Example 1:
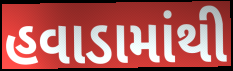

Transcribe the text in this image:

હવાડામાંથી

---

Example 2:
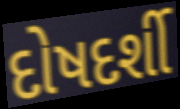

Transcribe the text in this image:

દોષદર્શી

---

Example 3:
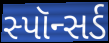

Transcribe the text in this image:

સ્પૉન્સર્ડ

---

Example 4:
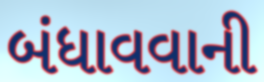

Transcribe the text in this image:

બંધાવવાની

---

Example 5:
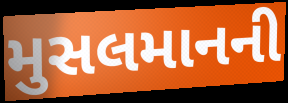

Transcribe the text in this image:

મુસલમાનની